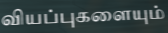
வியப்புகளையும்